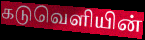
கடுவெளியின்